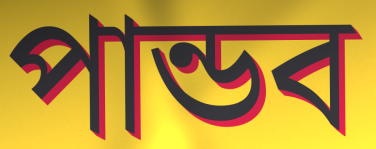
পান্ডব